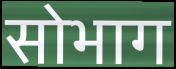
सोभाग